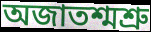
অজাতশ্মশ্রু